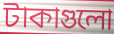
টাকাগুলো